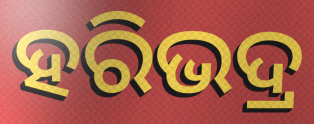
ହରିଭଦ୍ର